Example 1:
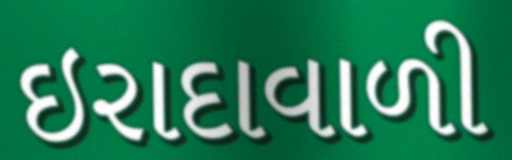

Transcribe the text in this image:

ઇરાદાવાળી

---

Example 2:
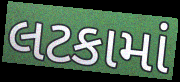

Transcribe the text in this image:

લટકામાં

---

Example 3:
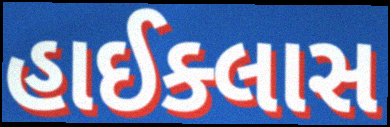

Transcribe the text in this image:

હાઈક્લાસ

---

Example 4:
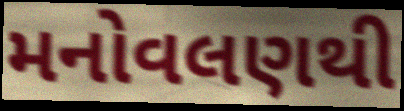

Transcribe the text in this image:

મનોવલણથી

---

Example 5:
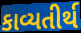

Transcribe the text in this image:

કાવ્યતીર્થ